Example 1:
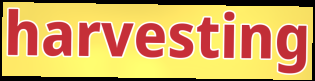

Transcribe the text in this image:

harvesting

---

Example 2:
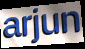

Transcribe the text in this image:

arjun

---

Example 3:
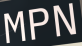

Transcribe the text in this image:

MPN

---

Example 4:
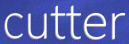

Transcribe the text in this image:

cutter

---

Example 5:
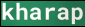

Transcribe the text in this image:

kharap